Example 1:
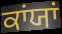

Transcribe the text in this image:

ਕਾਂਯਾਂ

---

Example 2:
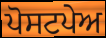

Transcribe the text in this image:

ਪੋਸਟਪੇਅ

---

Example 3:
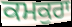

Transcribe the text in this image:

ਕਮਕੁਰਾ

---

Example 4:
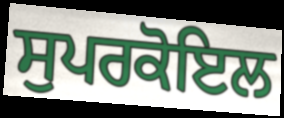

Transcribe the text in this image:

ਸੁਪਰਕੋਇਲ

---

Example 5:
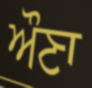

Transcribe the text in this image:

ਔਣਾ